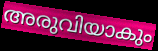
അരുവിയാകും